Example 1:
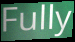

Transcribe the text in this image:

Fully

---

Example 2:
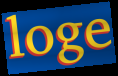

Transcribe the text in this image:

loge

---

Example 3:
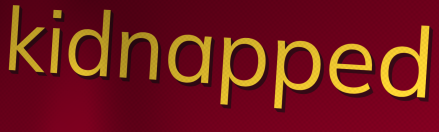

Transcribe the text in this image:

kidnapped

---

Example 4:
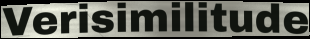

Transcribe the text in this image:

Verisimilitude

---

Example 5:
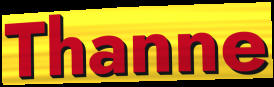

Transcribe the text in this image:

Thanne